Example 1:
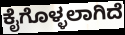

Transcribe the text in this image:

ಕೈಗೊಳ್ಳಲಾಗಿದೆ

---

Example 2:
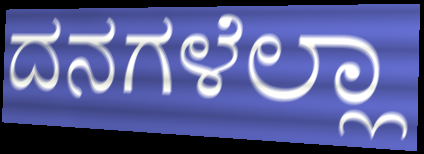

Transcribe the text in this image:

ದನಗಳೆಲ್ಲಾ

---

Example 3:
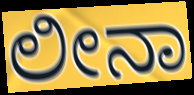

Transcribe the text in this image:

ಲೀನಾ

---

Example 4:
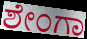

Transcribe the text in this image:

ಶೇಂಗಾ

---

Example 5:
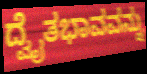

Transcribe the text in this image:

ದ್ವೈತಭಾವವನ್ನು